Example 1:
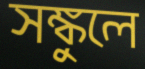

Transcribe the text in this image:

সঙ্কুলে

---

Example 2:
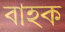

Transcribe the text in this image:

বাহক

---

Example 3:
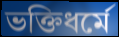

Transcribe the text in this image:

ভক্তিধর্মে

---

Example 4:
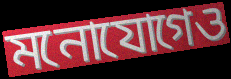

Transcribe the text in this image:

মনোযোগেও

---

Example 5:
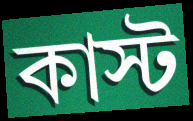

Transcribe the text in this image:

কাস্ট